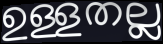
ഉള്ളതല്ല